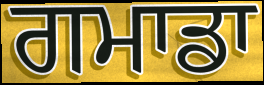
ਗਮਾਡਾ